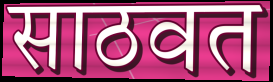
साठवत